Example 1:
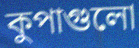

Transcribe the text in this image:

কুপাগুলো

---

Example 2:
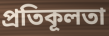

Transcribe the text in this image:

প্রতিকূলতা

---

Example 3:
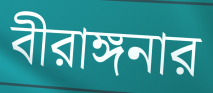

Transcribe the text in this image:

বীরাঙ্গনার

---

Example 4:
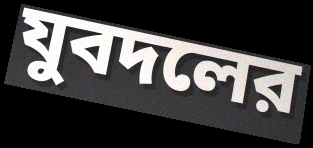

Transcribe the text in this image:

যুবদলের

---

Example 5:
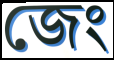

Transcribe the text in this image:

জেং